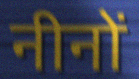
नीनों